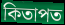
কিতাপত